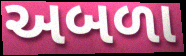
અબળા